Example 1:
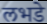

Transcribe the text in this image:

लभडे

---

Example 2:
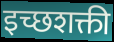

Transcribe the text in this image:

इच्छशक्ती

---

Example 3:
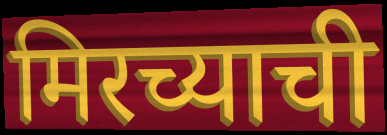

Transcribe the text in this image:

मिरच्याची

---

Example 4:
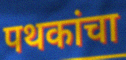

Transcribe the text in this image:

पथकांचा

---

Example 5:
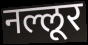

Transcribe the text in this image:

नल्लूर